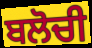
ਬਲੋਚੀ